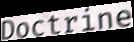
Doctrine